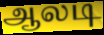
ஆலடி